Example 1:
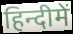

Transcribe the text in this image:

हिन्दीमें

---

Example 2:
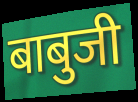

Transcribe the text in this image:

बाबुजी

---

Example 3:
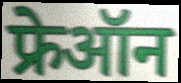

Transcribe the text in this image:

फ्रेऑन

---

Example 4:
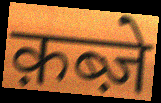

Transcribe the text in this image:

क़ब्ज़े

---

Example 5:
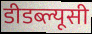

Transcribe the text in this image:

डीडब्ल्यूसी